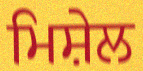
ਮਿਸ਼ੇਲ